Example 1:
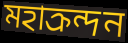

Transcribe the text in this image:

মহাক্রন্দন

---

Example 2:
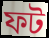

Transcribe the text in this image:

ফট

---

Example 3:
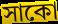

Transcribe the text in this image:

সাকো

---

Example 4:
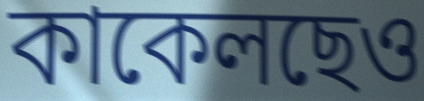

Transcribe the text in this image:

কাকেলছেও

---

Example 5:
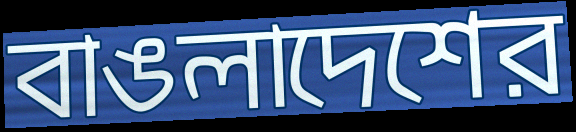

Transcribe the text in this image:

বাঙলাদেশের